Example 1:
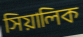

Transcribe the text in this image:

সিয়ালিক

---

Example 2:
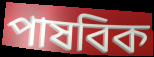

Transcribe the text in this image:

পাষবিক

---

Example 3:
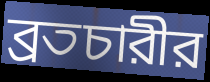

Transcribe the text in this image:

ব্রতচারীর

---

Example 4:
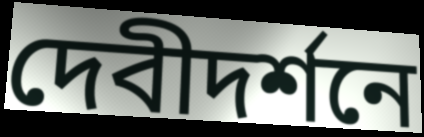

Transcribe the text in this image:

দেবীদর্শনে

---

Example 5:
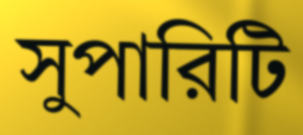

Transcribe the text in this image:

সুপারিটি